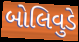
બોલિવુડે